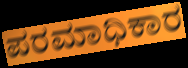
ಪರಮಾಧಿಕಾರ